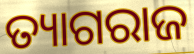
ତ୍ୟାଗରାଜ